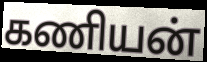
கணியன்